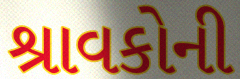
શ્રાવકોની